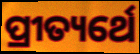
ପ୍ରୀତ୍ୟର୍ଥେ